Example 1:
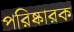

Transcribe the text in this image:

পরিষ্কারক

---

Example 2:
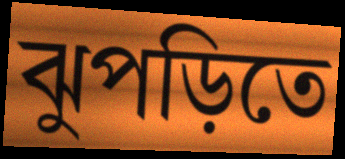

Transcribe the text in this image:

ঝুপড়িতে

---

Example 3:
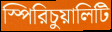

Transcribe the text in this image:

স্পিরিচুয়ালিটি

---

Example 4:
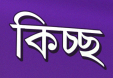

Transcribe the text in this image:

কিচ্ছ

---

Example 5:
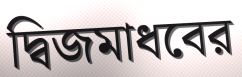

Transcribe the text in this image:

দ্বিজমাধবের